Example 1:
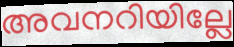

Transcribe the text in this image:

അവനറിയില്ലേ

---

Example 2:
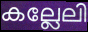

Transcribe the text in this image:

കല്ലേലി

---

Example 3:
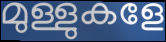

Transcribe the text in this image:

മുള്ളുകളേ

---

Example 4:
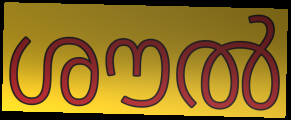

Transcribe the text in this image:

ശൗൽ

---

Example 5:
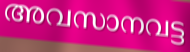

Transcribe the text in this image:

അവസാനവട്ട